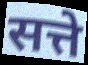
सत्ते